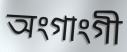
অংগাংগী